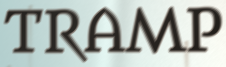
TRAMP